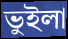
ভুইলা